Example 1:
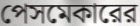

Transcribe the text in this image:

পেসমেকারের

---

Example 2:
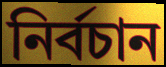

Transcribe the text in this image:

নির্বচান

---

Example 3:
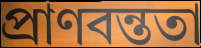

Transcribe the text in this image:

প্রাণবন্ততা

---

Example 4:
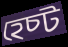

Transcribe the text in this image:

হেচ্ট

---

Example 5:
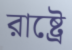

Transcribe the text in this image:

রাষ্ট্রে